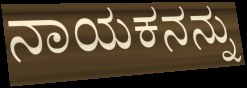
ನಾಯಕನನ್ನು